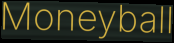
Moneyball